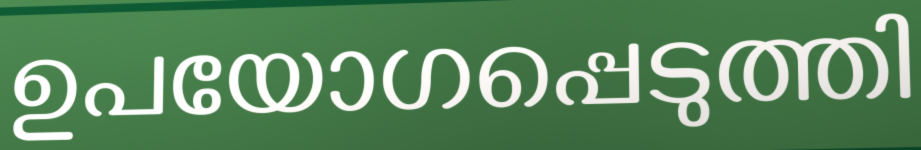
ഉപയോഗപ്പെടുത്തി